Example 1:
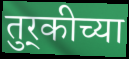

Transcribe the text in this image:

तुर्कीच्या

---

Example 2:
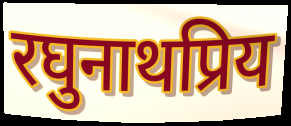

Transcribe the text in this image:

रघुनाथप्रिय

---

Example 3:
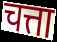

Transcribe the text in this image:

चत्ता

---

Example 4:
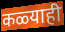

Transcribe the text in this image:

कळ्याही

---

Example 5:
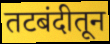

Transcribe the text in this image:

तटबंदीतून